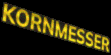
KORNMESSER